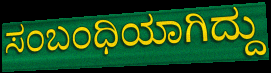
ಸಂಬಂಧಿಯಾಗಿದ್ದು